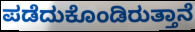
ಪಡೆದುಕೊಂಡಿರುತ್ತಾನೆ